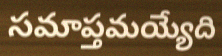
సమాప్తమయ్యేది